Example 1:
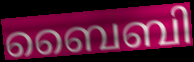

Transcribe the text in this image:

ബൈബി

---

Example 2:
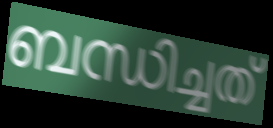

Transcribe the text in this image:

ബന്ധിച്ചത്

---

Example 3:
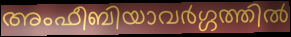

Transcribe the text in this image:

അംഫീബിയാവർഗ്ഗത്തിൽ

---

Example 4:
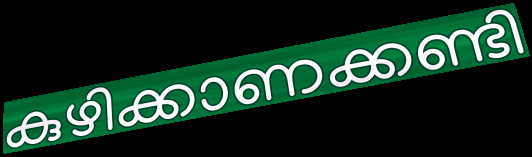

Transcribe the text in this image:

കുഴിക്കാണക്കണ്ടി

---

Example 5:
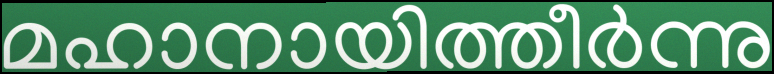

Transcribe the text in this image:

മഹാനായിത്തീർന്നു